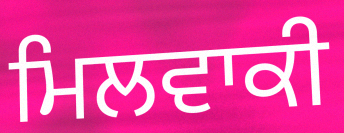
ਮਿਲਵਾਕੀ